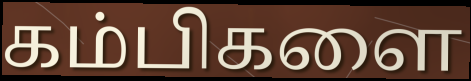
கம்பிகளை